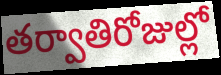
తర్వాతిరోజుల్లో